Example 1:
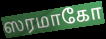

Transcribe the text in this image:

ஸரமாகோ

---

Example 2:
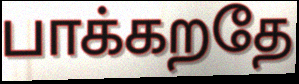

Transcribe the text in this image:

பாக்கறதே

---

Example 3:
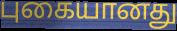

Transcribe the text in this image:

புகையானது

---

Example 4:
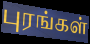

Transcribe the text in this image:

புரங்கள்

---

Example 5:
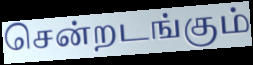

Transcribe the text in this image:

சென்றடங்கும்